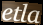
etla